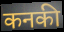
कनकी